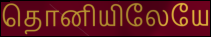
தொனியிலேயே